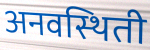
अनवस्थिती